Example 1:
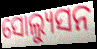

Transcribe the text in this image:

ସୋଲ୍ୟୁସନ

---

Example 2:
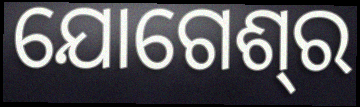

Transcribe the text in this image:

ଯୋଗେଶ୍‍ର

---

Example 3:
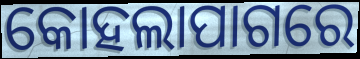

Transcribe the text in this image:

କୋହଲାପାଗରେ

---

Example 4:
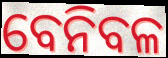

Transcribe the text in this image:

ବେନିବଳ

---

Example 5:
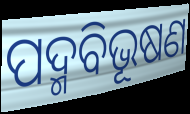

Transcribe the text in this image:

ପଦ୍ମବିଭୂଷଣ